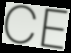
CE